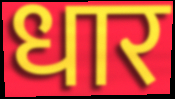
धार